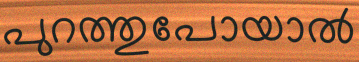
പുറത്തുപോയാൽ